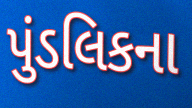
પુંડલિકના